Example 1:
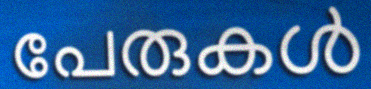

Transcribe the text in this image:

പേരുകൾ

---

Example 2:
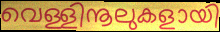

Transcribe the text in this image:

വെള്ളിനൂലുകളായി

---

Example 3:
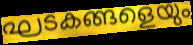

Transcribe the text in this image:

ഘടകങ്ങളെയും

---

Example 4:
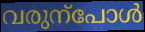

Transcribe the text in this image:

വരുന്പോൾ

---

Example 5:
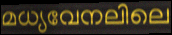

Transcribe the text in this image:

മധ്യവേനലിലെ